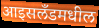
आइसलँडमधील